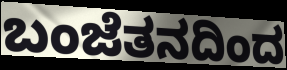
ಬಂಜೆತನದಿಂದ